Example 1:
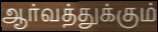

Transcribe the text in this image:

ஆர்வத்துக்கும்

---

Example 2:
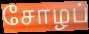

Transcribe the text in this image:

சோழப்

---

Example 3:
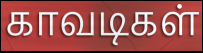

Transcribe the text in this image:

காவடிகள்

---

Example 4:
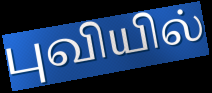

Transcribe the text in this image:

புவியில்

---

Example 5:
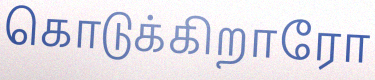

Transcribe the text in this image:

கொடுக்கிறாரோ